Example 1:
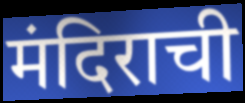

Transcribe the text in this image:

मंदिराची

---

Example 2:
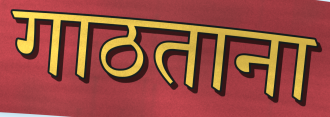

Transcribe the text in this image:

गाठताना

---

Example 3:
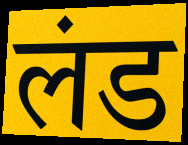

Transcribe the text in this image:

लंड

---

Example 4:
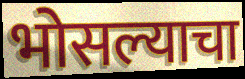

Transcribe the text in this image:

भोसल्याचा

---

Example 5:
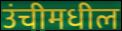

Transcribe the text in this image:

उंचीमधील